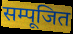
सम्पूजित